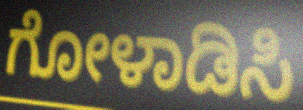
ಗೋಳಾಡಿಸಿ